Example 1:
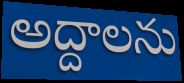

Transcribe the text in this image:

అద్దాలను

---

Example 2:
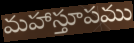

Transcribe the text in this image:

మహాస్తూపము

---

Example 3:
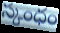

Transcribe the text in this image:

స్కంధం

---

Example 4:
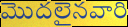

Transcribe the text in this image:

మొదలైనవారి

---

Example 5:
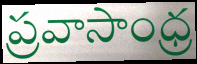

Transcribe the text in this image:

ప్రవాసాంధ్ర